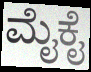
ಮೈಕೈ